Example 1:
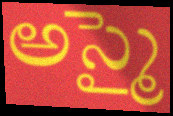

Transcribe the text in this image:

అస్మై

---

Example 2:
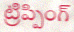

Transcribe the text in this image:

ట్రిప్పింగ్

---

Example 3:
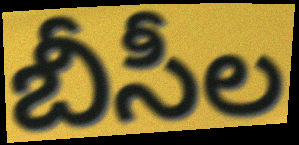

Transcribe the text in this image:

బీసీల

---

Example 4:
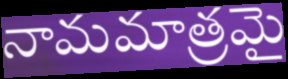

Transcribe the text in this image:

నామమాత్రమై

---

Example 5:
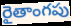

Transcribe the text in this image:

రైతాంగపు